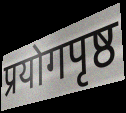
प्रयोगपृष्ठ